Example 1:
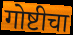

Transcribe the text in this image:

गोष्टीचा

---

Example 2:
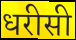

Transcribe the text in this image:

धरीसी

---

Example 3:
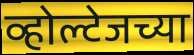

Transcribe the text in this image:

व्होल्टेजच्या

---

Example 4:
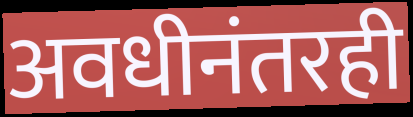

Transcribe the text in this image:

अवधीनंतरही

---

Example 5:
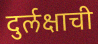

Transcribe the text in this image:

दुर्लक्षाची